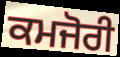
ਕਮਜੋਰੀ